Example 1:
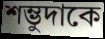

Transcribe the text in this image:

শম্ভুদাকে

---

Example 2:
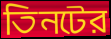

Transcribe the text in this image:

তিনটের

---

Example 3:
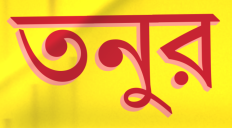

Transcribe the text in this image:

তনুর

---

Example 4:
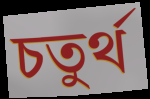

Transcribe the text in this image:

চতুর্থ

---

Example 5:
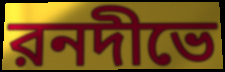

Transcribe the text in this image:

রনদীভে